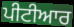
ਪੀਟੀਆਰ